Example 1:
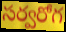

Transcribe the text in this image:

సర్వరోగ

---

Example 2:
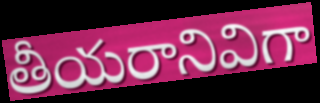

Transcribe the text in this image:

తీయరానివిగా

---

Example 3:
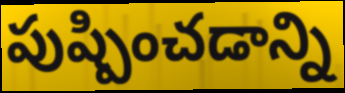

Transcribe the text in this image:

పుష్పించడాన్ని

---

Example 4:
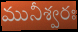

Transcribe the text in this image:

మునీశ్వరః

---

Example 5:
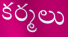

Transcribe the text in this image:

కర్మలు